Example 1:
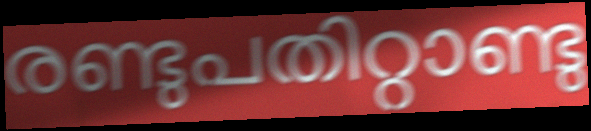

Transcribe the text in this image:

രണ്ടുപതിറ്റാണ്ടു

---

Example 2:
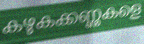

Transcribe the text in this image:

കഴുകക്കണ്ണുകളെ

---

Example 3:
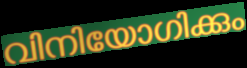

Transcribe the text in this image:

വിനിയോഗിക്കും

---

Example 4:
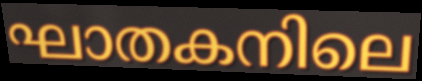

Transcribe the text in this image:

ഘാതകനിലെ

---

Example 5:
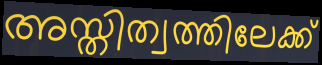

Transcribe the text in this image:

അസ്തിത്വത്തിലേക്ക്